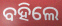
ବହିଲେ